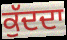
ਕੁੱਦਦਾ